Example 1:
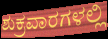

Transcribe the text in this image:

ಶುಕ್ರವಾರಗಳಲ್ಲಿ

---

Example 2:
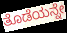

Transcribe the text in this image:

ತೊಡೆಯನ್ನೇ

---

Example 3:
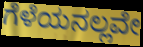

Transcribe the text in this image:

ಗೆಳೆಯನಲ್ಲವೇ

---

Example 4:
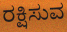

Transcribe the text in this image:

ರಕ್ಷಿಸುವ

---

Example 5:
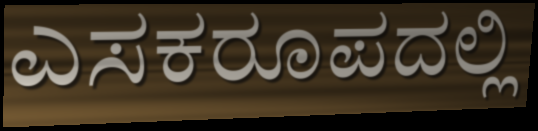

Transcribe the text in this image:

ಎಸಕರೂಪದಲ್ಲಿ